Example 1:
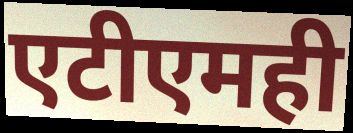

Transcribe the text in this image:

एटीएमही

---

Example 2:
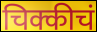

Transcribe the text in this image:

चिक्कीचं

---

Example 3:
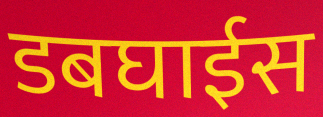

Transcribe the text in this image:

डबघाईस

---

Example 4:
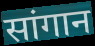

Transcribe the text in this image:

सांगान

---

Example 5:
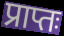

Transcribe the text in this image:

प्राप्तः